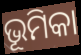
ଭୂମିକା